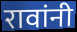
रावांनी